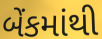
બેંકમાંથી